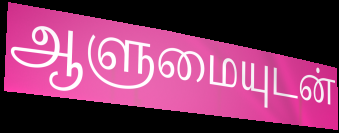
ஆளுமையுடன்